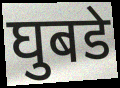
घुबडे